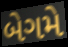
બેગમે